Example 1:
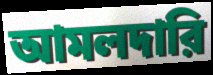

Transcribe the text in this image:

আমলদারি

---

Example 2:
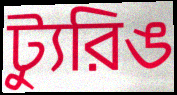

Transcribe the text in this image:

ট্যুরিঙ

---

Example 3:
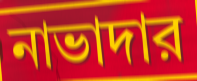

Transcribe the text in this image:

নাভাদার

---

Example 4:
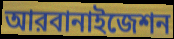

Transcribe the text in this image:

আরবানাইজেশন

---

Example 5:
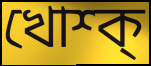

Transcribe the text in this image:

খোশ্ক্